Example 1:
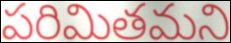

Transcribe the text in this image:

పరిమితమని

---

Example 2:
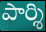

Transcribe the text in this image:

పార్శి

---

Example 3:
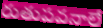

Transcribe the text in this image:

రుతుపవనాలే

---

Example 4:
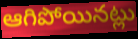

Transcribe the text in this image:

ఆగిపోయినట్లు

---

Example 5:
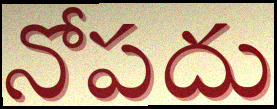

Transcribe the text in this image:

నోపదు